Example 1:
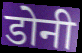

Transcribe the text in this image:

डोनी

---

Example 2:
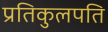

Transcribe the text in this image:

प्रतिकुलपति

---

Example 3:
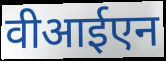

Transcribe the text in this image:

वीआईएन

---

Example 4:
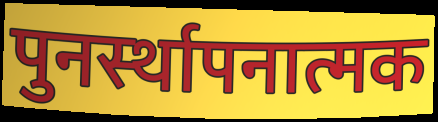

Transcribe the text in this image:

पुनर्स्थापनात्मक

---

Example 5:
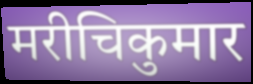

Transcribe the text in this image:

मरीचिकुमार